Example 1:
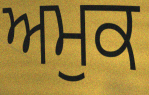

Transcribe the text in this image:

ਅਮੁਕ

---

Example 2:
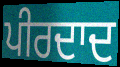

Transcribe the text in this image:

ਪੀਰਦਾਦ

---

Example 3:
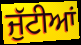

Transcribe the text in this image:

ਜੁੱਟੀਆਂ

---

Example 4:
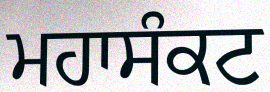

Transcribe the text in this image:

ਮਹਾਸੰਕਟ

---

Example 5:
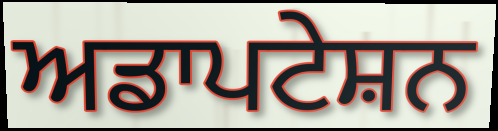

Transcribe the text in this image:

ਅਡਾਪਟੇਸ਼ਨ